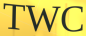
TWC